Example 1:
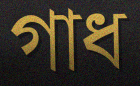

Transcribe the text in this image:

গাধ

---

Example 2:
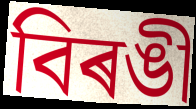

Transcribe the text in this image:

বিৰঙী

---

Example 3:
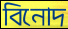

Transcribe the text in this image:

বিনোদ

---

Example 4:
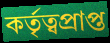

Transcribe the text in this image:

কৰ্তৃত্বপ্ৰাপ্ত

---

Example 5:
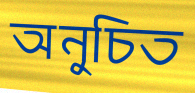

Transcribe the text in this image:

অনুচিত